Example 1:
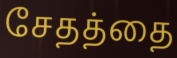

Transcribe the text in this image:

சேதத்தை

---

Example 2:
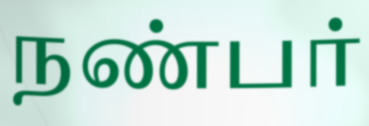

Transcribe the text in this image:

நண்பர்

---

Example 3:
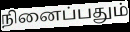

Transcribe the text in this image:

நினைப்பதும்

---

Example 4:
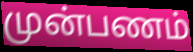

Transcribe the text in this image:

முன்பணம்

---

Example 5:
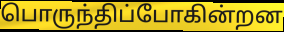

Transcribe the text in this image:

பொருந்திப்போகின்றன